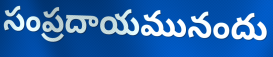
సంప్రదాయమునందు